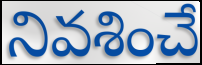
నివశించే